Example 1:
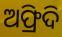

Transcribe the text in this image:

ଅଫ୍ରିଦି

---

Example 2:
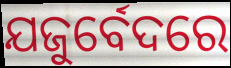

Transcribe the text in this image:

ଯଜୁର୍ବେଦରେ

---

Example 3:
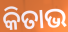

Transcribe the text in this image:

କିତାଭ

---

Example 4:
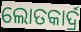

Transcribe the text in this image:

ଲୋତକାର୍ଦ୍ର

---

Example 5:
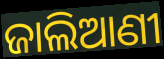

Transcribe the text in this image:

ଜାଲିଆଣୀ